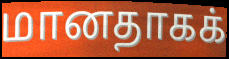
மானதாகக்